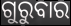
ଗୁରୁବାର